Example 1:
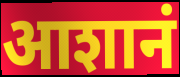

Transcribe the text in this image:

आशानं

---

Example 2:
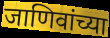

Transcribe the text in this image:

जाणिवांच्या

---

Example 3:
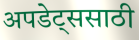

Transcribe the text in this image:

अपडेट्ससाठी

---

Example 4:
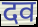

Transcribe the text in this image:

दव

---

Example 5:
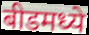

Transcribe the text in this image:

बीडमध्ये